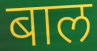
बाल